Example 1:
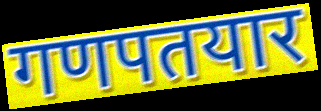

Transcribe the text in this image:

गणपतयार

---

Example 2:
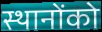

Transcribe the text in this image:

स्थानोंको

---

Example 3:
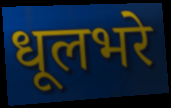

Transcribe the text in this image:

धूलभरे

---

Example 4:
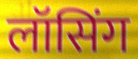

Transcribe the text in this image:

लॉसिंग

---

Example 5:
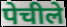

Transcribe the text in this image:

पेचीले